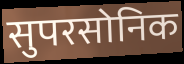
सुपरसोनिक